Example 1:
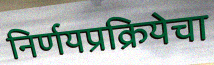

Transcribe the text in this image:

निर्णयप्रक्रियेचा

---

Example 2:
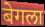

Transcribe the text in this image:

बेगला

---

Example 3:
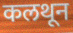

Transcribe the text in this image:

कलथून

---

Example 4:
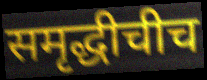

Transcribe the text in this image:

समृद्धीचीच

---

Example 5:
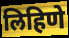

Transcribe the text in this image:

लिहिणे